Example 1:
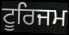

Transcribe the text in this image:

ਟੂਰਿਜਮ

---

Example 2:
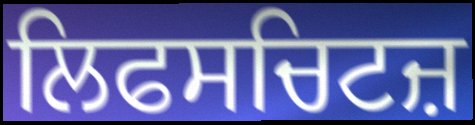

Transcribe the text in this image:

ਲਿਫਸਚਿਟਜ਼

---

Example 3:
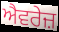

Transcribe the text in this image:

ਐਵਰੇਜ਼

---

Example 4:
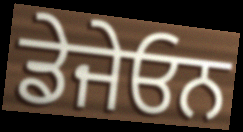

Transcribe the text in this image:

ਡੇਜੇਓਨ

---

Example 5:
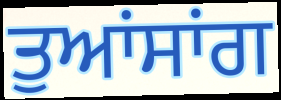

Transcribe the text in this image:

ਤੁਆਂਸਾਂਗ